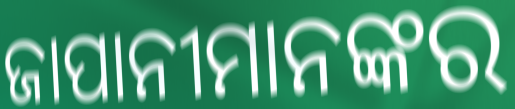
ଜାପାନୀମାନଙ୍କର